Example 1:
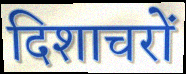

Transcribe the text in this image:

दिशाचरों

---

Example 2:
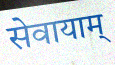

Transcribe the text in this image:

सेवायाम्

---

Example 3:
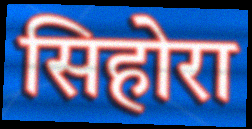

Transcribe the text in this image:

सिहोरा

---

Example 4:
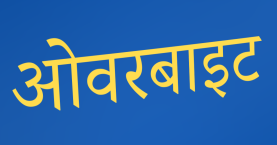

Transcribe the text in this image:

ओवरबाइट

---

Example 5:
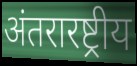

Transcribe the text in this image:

अंतरारष्ट्रीय